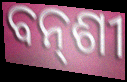
ବନ୍‌ଶୀ